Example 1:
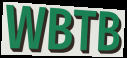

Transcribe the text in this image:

WBTB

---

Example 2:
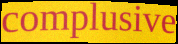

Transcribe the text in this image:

complusive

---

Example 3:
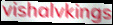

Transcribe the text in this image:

vishalvkings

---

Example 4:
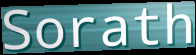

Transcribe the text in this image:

Sorath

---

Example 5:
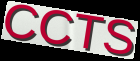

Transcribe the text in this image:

CCTS